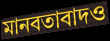
মানবতাবাদও